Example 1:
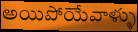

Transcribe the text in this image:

అయిపోయేవాళ్ళు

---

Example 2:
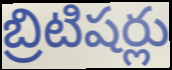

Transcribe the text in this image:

బ్రిటిషర్లు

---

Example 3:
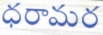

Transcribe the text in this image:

ధరామర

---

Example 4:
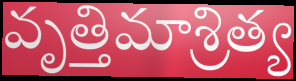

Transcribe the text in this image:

వృత్తిమాశ్రిత్య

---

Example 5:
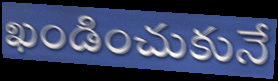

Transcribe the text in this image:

ఖండించుకునే